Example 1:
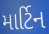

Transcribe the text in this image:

માર્ટિન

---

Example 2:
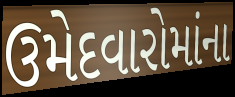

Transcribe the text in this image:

ઉમેદવારોમાંના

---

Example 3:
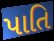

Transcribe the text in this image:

પાતિ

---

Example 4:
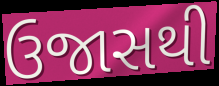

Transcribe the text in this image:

ઉજાસથી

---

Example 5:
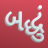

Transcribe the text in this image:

બદ્ધું